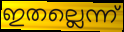
ഇതല്ലെന്ന്